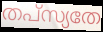
തപ്സ്യതേ